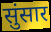
सुंसार